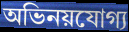
অভিনয়যোগ্য